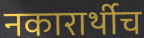
नकारार्थीच